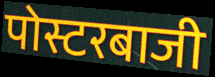
पोस्टरबाजी